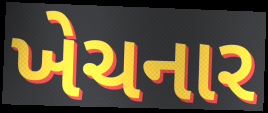
ખેચનાર